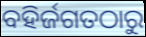
ବହିର୍ଜଗତଠାରୁ